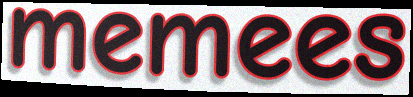
memees